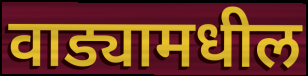
वाड्यामधील